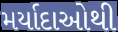
મર્યાદાઓથી